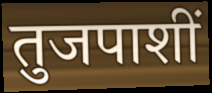
तुजपाशीं